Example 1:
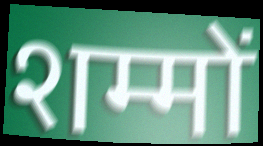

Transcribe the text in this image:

शम्मों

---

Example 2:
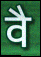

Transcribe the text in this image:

वै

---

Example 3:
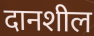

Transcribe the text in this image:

दानशील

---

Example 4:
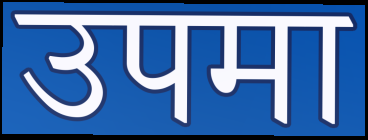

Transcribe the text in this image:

उपमा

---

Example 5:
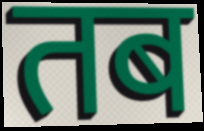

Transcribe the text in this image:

तब